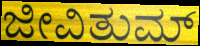
ಜೀವಿತುಮ್